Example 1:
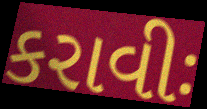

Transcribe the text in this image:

કરાવીઃ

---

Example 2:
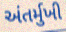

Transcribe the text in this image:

અંતર્મુખી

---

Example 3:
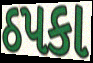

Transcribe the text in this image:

ઠપકા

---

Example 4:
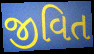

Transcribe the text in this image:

જીવિત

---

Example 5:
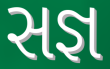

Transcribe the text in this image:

સજ્ઞ